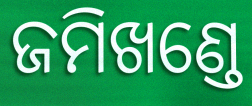
ଜମିଖଣ୍ଡେ